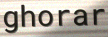
ghorar